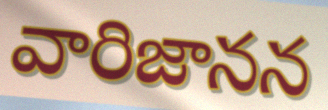
వారిజానన